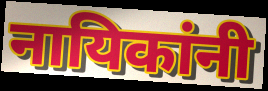
नायिकांनी